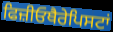
ਫਿਜ਼ੀਓਥੈਰੇਪਿਸਟਾਂ